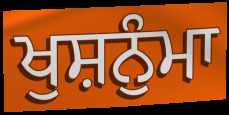
ਖੁਸ਼ਨੁੰਮਾ